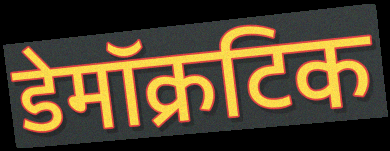
डेमॉक्रटिक